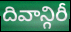
దివాన్గిరీ